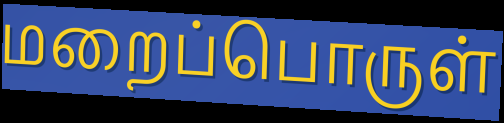
மறைப்பொருள்